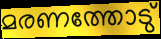
മരണത്തോടു്